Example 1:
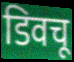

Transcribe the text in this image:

डिवचू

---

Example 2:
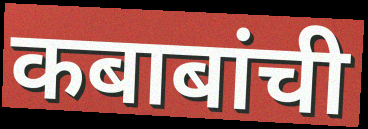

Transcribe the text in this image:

कबाबांची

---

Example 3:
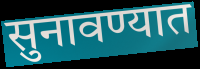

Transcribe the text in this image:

सुनावण्यात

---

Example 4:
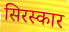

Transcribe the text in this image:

सिरस्कार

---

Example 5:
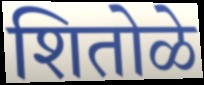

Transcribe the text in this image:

शितोळे